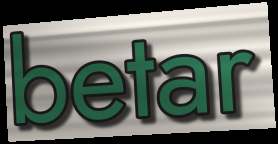
betar